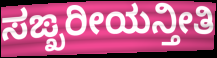
ಸಙ್ಖರೀಯನ್ತೀತಿ